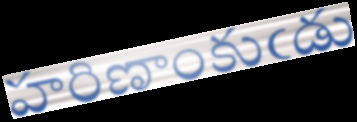
హరిణాంకుఁడు